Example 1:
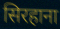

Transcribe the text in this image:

सिरहाना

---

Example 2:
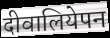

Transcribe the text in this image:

दीवालियेपन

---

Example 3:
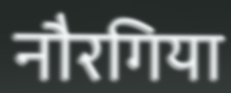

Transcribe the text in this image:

नौरगिया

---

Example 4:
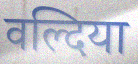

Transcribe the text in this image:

वल्दिया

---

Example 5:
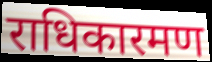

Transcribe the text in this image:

राधिकारमण